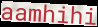
aamhihi